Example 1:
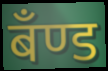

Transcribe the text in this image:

बँण्ड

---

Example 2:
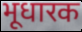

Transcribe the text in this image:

भूधारक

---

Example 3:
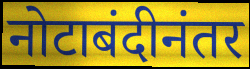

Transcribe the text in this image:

नोटाबंदीनंतर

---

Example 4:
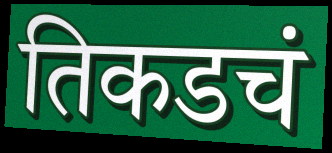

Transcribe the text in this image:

तिकडचं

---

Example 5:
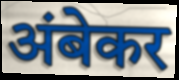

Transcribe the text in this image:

अंबेकर